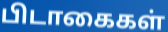
பிடாகைகள்